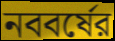
নববর্ষের